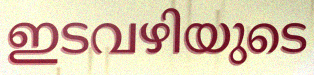
ഇടവഴിയുടെ